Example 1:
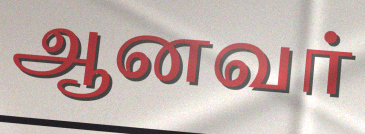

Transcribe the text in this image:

ஆனவர்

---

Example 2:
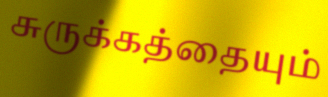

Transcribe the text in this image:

சுருக்கத்தையும்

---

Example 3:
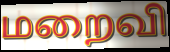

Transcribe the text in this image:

மறைவி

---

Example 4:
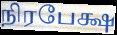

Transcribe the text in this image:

நிரபேக்ஷ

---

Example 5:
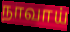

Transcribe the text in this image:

நாவாய்